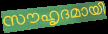
സൗഹൃദമായി